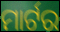
ମାର୍ଟର